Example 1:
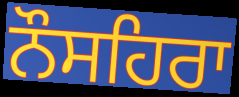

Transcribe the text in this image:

ਨੌਸਹਿਰਾ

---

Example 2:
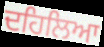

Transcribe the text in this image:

ਦਹਿਲਿਆ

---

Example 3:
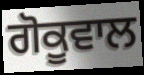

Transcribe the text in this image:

ਗੋਕੂਵਾਲ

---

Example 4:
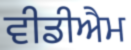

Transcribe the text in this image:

ਵੀਡੀਐਮ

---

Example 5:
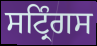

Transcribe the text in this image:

ਸਟ੍ਰਿੰਗਸ